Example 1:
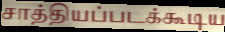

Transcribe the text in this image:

சாத்தியப்படக்கூடிய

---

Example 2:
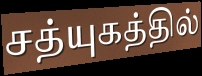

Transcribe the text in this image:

சத்யுகத்தில்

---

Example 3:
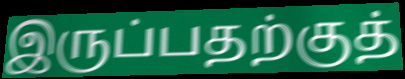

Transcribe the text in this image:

இருப்பதற்குத்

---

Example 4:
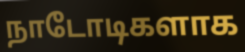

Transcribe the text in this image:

நாடோடிகளாக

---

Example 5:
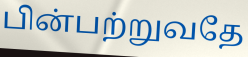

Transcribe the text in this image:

பின்பற்றுவதே